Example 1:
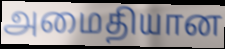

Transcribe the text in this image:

அமைதியான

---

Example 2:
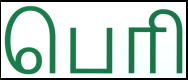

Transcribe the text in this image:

பெரி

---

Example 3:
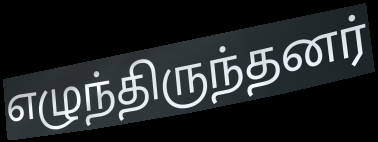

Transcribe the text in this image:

எழுந்திருந்தனர்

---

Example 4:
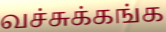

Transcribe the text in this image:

வச்சுக்கங்க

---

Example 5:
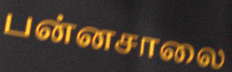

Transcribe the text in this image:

பன்னசாலை